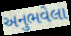
અનુભવેલા